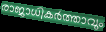
രാജാധികർത്താവും